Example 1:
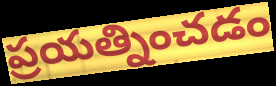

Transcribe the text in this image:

ప్రయత్నించడం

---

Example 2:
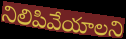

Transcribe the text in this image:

నిలిపివేయాలని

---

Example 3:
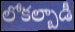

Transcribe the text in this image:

లోకల్బాడీ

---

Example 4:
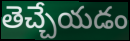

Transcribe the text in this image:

తెచ్చేయడం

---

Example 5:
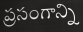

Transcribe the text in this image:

ప్రసంగాన్ని